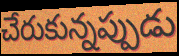
చేరుకున్నప్పుడు